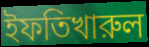
ইফতিখারুল